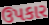
ઉપકાર